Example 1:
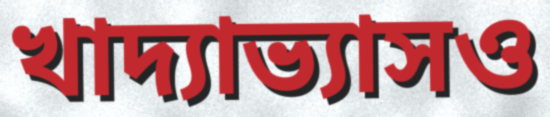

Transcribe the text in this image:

খাদ্যাভ্যাসও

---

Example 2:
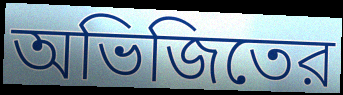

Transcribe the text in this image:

অভিজিতের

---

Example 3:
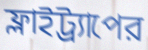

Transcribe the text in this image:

ফ্লাইট্র্যাপের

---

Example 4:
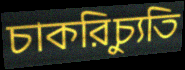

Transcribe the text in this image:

চাকরিচ্যুতি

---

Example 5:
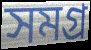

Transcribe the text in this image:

সমগ্র